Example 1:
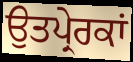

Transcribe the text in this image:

ਉਤਪ੍ਰੇਰਕਾਂ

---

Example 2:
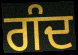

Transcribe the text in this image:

ਗੰਦ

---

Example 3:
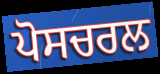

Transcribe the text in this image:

ਪੋਸਚਰਲ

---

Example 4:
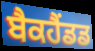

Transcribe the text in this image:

ਬੈਕਹੈਂਡਡ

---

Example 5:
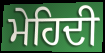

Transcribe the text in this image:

ਮੇਹਿਦੀ